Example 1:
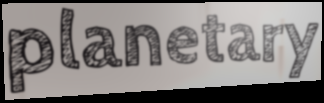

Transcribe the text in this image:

planetary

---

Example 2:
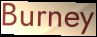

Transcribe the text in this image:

Burney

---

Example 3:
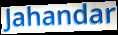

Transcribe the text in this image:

Jahandar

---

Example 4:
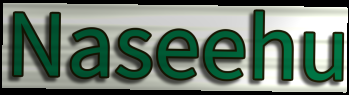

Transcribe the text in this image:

Naseehu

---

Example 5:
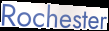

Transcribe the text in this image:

Rochester